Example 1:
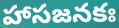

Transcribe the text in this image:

హాసజనకః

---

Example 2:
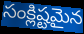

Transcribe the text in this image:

సంక్లిష్టమైన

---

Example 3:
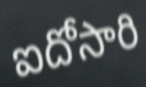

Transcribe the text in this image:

ఐదోసారి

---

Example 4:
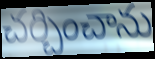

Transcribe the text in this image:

చర్చించాను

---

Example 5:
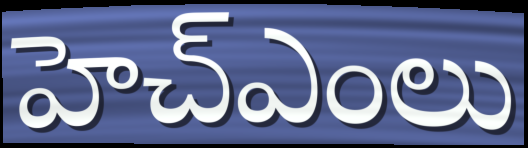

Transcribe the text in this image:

హెచ్ఎంలు